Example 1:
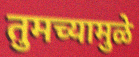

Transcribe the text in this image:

तुमच्यामुळे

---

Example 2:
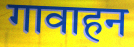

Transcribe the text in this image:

गावाहन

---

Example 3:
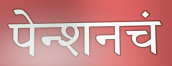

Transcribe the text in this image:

पेन्शनचं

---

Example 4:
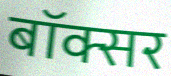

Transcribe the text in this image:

बॉक्सर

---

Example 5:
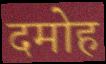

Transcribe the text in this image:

दमोह